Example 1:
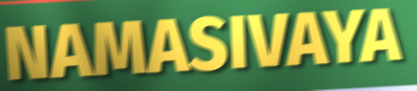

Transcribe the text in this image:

NAMASIVAYA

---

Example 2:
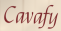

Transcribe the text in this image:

Cavafy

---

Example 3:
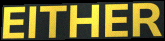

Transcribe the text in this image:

EITHER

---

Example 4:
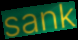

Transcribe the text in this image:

sank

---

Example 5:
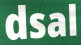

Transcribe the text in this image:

dsal